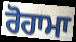
ਰੋਹਾਮਾ